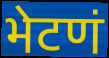
भेटणं